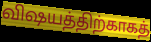
விஷயத்திற்காகத்